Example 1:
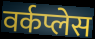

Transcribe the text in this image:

वर्कप्लेस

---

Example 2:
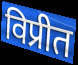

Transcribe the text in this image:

विप्रीत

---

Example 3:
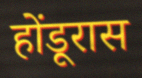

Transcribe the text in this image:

होंडूरास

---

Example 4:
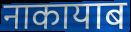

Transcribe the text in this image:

नाकायाब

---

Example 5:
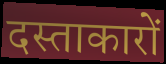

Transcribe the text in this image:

दस्ताकारों